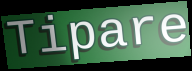
Tipare